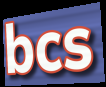
bcs